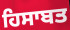
ਹਿਸਾਬਤ